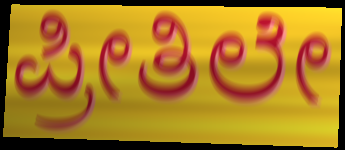
ಪ್ರೀತಿಲೇ